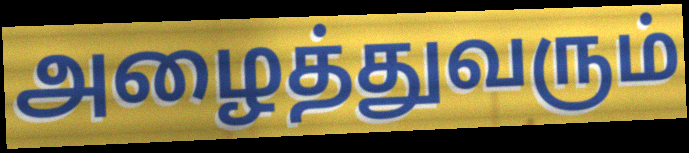
அழைத்துவரும்